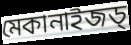
মেকানাইজড্